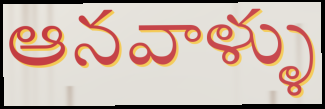
ఆనవాళ్ళు